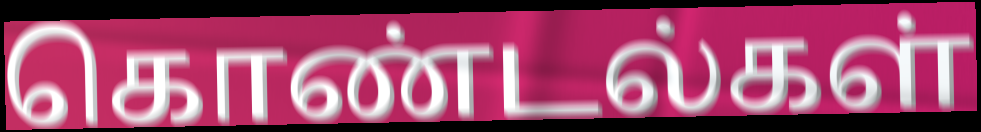
கொண்டல்கள்